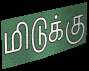
மிடுக்கு